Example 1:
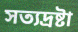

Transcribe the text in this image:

সত্যদ্রষ্টা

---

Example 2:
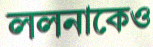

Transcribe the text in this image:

ললনাকেও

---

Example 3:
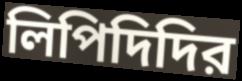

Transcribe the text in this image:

লিপিদিদির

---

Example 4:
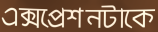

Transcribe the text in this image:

এক্সপ্রেশনটাকে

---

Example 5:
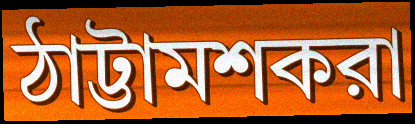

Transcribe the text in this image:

ঠাট্টামশকরা